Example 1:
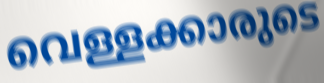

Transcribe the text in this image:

വെള്ളക്കാരുടെ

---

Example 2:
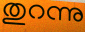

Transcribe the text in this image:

തുറന്നു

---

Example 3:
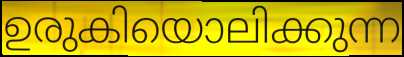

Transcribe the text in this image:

ഉരുകിയൊലിക്കുന്ന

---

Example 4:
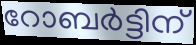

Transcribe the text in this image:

റോബർട്ടിന്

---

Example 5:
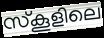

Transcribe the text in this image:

സ്കൂളിലെ